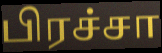
பிரச்சா